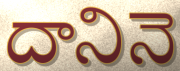
దానినె